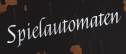
Spielautomaten